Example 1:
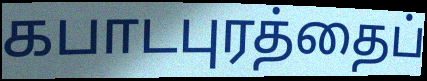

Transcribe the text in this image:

கபாடபுரத்தைப்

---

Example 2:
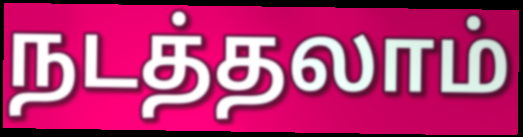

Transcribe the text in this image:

நடத்தலாம்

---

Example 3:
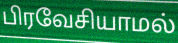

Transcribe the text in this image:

பிரவேசியாமல்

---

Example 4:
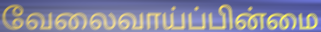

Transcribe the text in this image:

வேலைவாய்ப்பின்மை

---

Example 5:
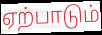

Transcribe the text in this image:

ஏற்பாடும்